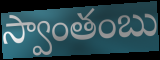
స్వాంతంబు